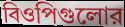
বিওপিগুলোর